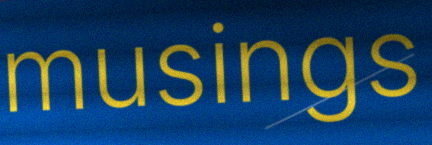
musings